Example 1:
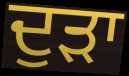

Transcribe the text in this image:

ਦੁੜਾ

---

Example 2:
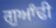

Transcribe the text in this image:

ਗੁਆੰਢੀ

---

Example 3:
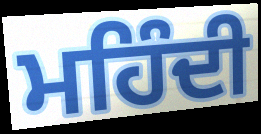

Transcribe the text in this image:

ਮਹਿੰਦੀ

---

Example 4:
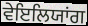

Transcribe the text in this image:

ਵੇਇਲਿਯਾਂਗ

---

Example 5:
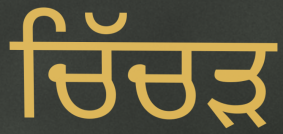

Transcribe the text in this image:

ਚਿੱਚੜ